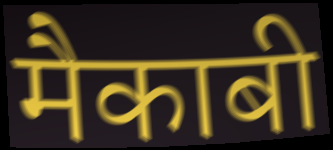
मैकाबी